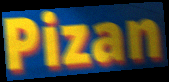
Pizan